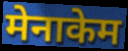
मेनाकेम